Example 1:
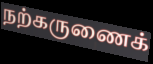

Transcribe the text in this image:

நற்கருணைக்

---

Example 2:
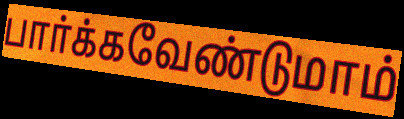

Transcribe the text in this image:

பார்க்கவேண்டுமாம்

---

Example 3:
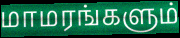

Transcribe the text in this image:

மாமரங்களும்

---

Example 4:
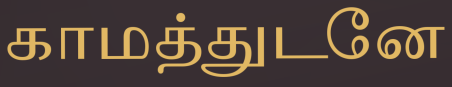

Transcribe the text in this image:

காமத்துடனே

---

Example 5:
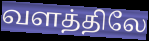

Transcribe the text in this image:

வளத்திலே